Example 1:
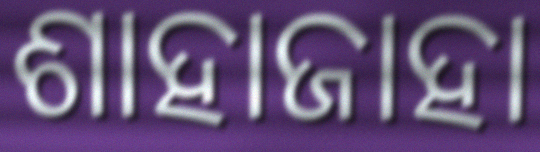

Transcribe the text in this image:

ଶାହାଜାହା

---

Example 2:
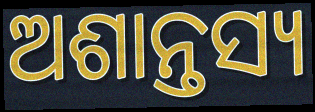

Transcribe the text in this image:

ଅଶାନ୍ତସ୍ୟ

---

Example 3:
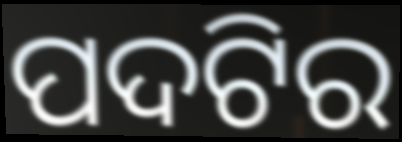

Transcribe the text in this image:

ପଦଟିର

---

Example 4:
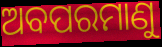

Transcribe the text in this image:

ଅବପରମାଣୁ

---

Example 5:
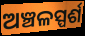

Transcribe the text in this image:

ଅଞ୍ଚଳସ୍ପର୍ଶ